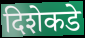
दिशेकडे